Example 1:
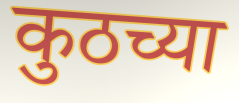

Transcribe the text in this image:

कुठच्या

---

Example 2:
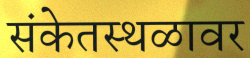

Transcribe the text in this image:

संकेतस्थळावर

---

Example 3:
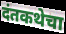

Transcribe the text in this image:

दंतकथेचा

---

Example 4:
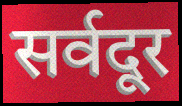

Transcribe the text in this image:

सर्वदूर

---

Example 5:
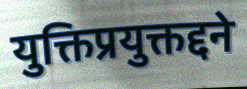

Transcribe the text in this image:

युक्तिप्रयुक्तद्दने